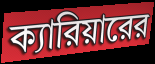
ক্যারিয়ারের